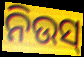
ନିଉସ୍